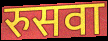
रुसवा